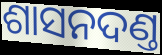
ଶାସନଦଣ୍ତ